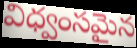
విధ్వంసమైన